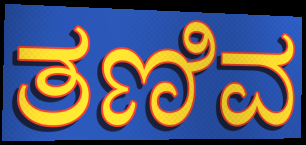
ತಣಿವ